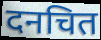
दनचित